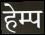
हेम्प